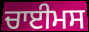
ਚਾਈਮਸ